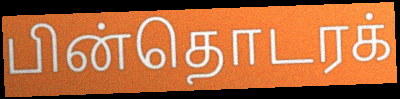
பின்தொடரக்